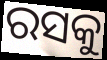
ରସକୁ